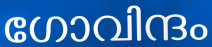
ഗോവിന്ദം